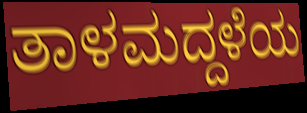
ತಾಳಮದ್ದಳೆಯ